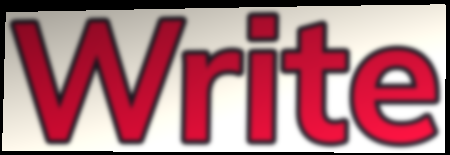
Write